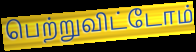
பெற்றுவிட்டோம்